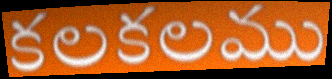
కలకలము